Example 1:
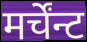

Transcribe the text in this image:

मर्चेंन्ट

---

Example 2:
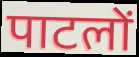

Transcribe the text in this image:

पाटलों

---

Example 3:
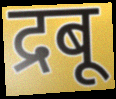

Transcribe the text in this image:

द्रबू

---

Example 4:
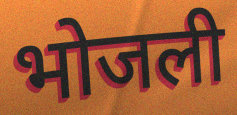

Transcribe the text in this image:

भोजली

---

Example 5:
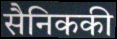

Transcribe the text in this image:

सैनिककी